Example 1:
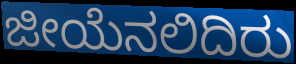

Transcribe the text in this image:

ಜೀಯೆನಲಿದಿರು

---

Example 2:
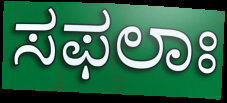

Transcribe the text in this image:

ಸಫಲಾಃ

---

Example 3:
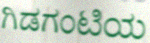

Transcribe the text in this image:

ಗಿಡಗಂಟಿಯ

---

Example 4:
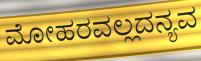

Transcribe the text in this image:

ಮೋಹರವಲ್ಲದನ್ಯವ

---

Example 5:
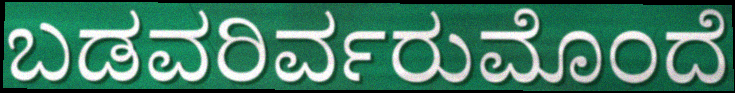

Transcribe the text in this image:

ಬಡವರಿರ್ವರುಮೊಂದೆ